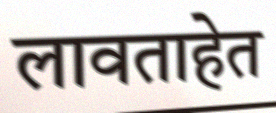
लावताहेत